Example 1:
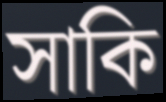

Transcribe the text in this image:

সাকি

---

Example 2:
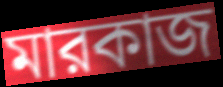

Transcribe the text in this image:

মারকাজ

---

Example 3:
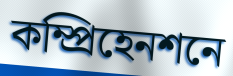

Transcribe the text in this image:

কম্প্রিহেনশনে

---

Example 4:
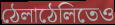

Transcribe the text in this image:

ঠেলাঠেলিতেও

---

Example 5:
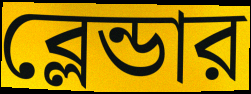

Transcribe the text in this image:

ব্লেন্ডার